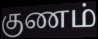
குணம்